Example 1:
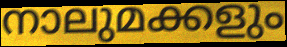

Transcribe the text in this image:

നാലുമക്കളും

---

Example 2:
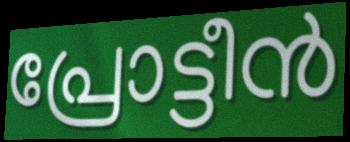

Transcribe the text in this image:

പ്രോട്ടീൻ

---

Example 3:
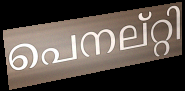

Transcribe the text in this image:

പെനല്റ്റി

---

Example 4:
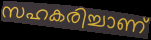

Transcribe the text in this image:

സഹകരിച്ചാണ്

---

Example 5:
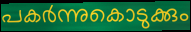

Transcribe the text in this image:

പകർന്നുകൊടുക്കും